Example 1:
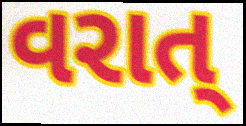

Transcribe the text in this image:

વરાત્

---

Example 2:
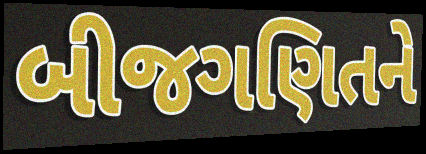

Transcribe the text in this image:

બીજગણિતને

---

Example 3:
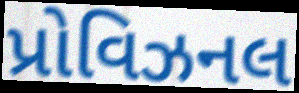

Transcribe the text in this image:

પ્રોવિઝનલ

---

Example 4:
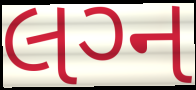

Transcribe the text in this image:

લગ્‍ન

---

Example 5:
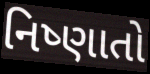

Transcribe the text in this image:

નિષ્ણાતો